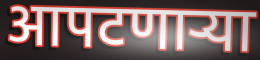
आपटणाऱ्या